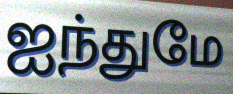
ஐந்துமே